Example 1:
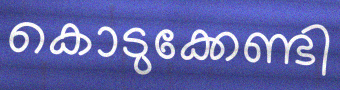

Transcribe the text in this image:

കൊടുക്കേണ്ടി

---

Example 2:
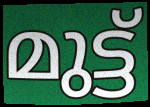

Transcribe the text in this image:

മുട്ട്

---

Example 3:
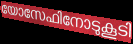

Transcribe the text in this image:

യോസേഫിനോടുകൂടി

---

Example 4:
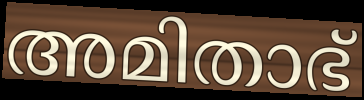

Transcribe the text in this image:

അമിതാഭ്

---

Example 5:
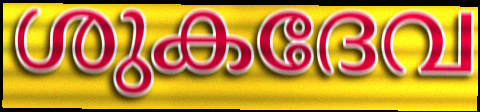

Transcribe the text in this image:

ശുകദേവ